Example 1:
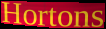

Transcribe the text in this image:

Hortons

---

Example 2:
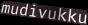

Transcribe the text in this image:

mudivukku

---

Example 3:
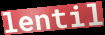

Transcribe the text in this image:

lentil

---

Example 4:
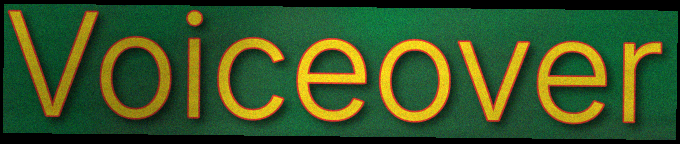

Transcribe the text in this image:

Voiceover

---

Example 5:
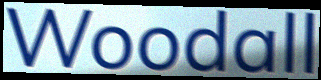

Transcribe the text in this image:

Woodall